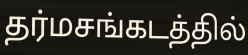
தர்மசங்கடத்தில்